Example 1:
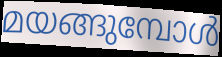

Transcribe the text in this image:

മയങ്ങുമ്പോൾ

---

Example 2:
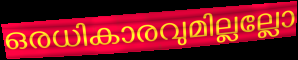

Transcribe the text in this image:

ഒരധികാരവുമില്ലല്ലോ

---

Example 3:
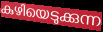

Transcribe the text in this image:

കുഴിയെടുക്കുന്ന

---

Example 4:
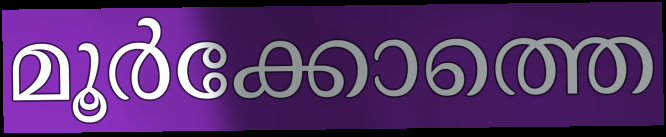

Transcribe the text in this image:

മൂർക്കോത്തെ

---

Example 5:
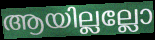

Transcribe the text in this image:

ആയില്ലല്ലോ